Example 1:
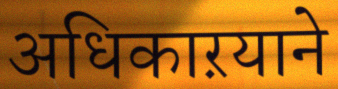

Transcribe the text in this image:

अधिकाऱयाने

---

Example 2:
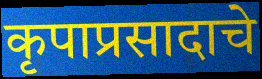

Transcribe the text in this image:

कृपाप्रसादाचे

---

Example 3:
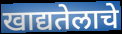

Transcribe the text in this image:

खाद्यतेलाचे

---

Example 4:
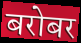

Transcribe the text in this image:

बरोबर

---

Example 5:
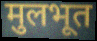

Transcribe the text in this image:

मुलभूत